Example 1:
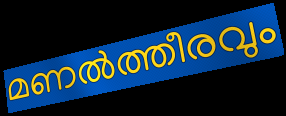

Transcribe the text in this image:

മണൽത്തീരവും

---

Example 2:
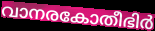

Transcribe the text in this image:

വാനരകോതീഭിർ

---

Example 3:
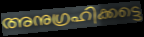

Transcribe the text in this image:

അനുഗ്രഹിക്കട്ടെ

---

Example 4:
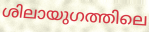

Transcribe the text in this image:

ശിലായുഗത്തിലെ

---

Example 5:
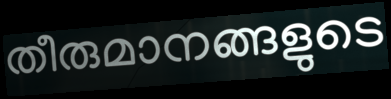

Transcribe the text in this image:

തീരുമാനങ്ങളുടെ